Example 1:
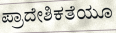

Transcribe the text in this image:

ಪ್ರಾದೇಶಿಕತೆಯೂ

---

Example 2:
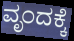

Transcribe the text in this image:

ವೃಂದಕ್ಕೆ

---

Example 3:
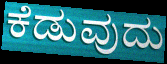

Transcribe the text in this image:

ಕೆಡುವುದು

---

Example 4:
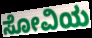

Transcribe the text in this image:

ಸೋವಿಯ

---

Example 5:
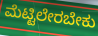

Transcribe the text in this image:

ಮೆಟ್ಟಿಲೇರಬೇಕು